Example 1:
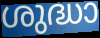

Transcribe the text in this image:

ശുദ്ധാ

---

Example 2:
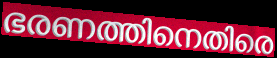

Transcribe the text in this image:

ഭരണത്തിനെതിരെ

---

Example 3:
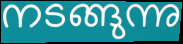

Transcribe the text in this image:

നടങ്ങുന്നു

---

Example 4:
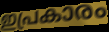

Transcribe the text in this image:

ഇപ്രകാരം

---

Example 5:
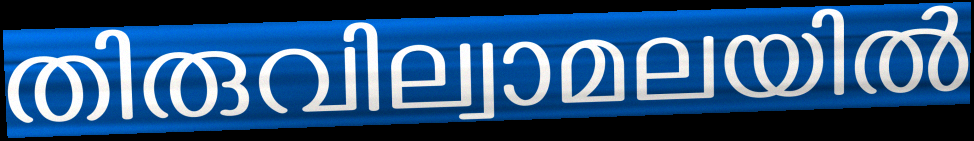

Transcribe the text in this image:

തിരുവില്വാമലയിൽ